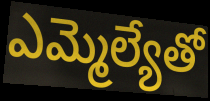
ఎమ్మెల్యేతో